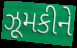
ઝૂમકીને